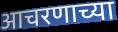
आचरणाच्या